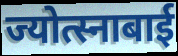
ज्योत्स्नाबाई